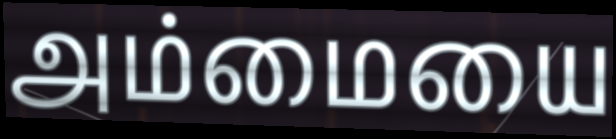
அம்மையை